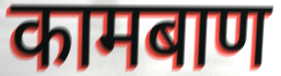
कामबाण